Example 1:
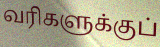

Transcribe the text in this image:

வரிகளுக்குப்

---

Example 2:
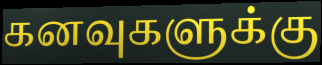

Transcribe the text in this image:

கனவுகளுக்கு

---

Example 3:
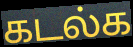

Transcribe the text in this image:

கடல்க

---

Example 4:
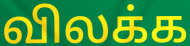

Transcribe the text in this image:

விலக்க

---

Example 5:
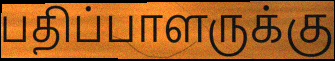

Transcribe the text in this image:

பதிப்பாளருக்கு